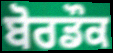
ਬੋਰਡੌਕ